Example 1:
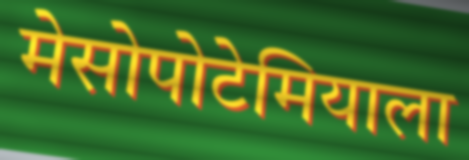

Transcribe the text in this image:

मेसोपोटेमियाला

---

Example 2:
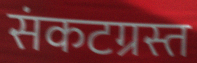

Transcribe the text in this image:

संकटग्रस्त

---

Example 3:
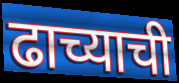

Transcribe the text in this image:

ढाच्याची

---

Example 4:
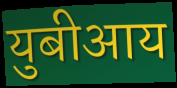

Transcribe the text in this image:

युबीआय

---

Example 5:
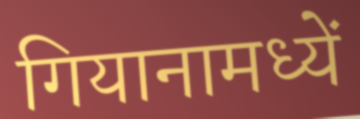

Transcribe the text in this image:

गियानामध्यें